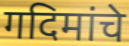
गदिमांचे